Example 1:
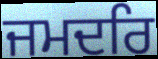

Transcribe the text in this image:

ਜਮਦਰਿ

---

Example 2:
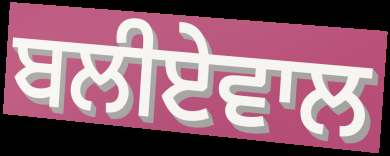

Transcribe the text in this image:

ਬਲੀਏਵਾਲ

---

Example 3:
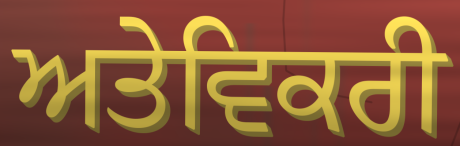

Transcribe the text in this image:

ਅਤੇਵਿਕਰੀ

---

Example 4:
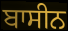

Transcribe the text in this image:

ਬਾਸੀਨ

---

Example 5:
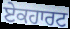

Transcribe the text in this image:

ਏਕਹਾਰਟ